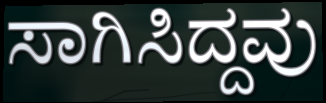
ಸಾಗಿಸಿದ್ದವು